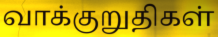
வாக்குறுதிகள்